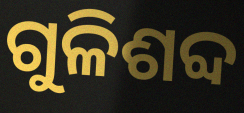
ଗୁଳିଶବ୍ଦ